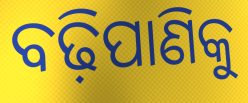
ବଢ଼ିପାଣିକୁ